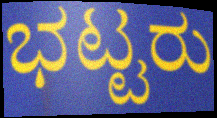
ಭಟ್ಟರು